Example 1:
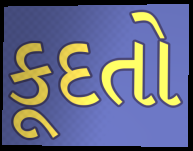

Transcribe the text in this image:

કૂદતો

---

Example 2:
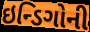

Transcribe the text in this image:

ઇન્ડિગોની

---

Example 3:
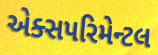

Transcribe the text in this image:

એક્સપરિમેન્ટલ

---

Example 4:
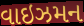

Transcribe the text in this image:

વાઇઝમન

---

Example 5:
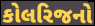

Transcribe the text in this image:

કોલરિજનો